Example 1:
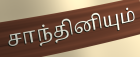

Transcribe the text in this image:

சாந்தினியும்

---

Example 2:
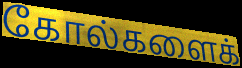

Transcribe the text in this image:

கோல்களைக்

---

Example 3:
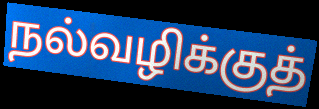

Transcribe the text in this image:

நல்வழிக்குத்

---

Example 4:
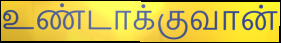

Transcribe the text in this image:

உண்டாக்குவான்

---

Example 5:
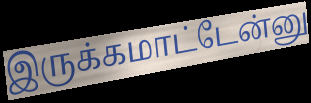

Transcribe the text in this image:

இருக்கமாட்டேன்னு